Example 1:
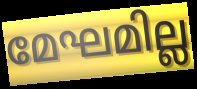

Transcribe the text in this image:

മേഘമില്ല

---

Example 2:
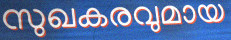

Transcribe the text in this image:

സുഖകരവുമായ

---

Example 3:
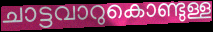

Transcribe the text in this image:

ചാട്ടവാറുകൊണ്ടുള്ള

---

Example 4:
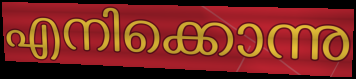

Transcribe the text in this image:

എനിക്കൊന്നു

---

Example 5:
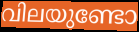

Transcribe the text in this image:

വിലയുണ്ടോ